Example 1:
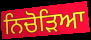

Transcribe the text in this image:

ਨਿਚੋੜਿਆ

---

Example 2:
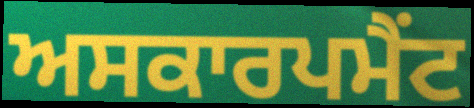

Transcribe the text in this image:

ਅਸਕਾਰਪਮੈਂਟ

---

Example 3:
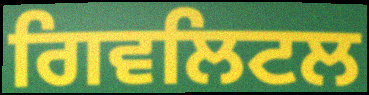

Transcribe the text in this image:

ਗਿਵਲਿਟਲ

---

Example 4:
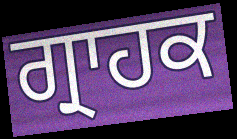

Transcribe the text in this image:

ਗ੍ਰਾਹਕ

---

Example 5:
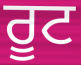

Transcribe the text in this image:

ਰੂਟ